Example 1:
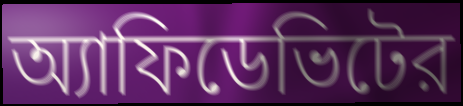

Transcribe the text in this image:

অ্যাফিডেভিটের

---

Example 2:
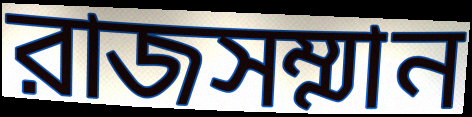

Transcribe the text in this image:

রাজসম্মান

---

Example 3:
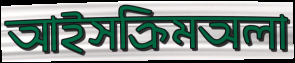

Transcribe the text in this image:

আইসক্রিমঅলা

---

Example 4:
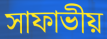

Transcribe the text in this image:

সাফাভীয়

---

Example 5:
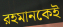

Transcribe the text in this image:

রহমানকেই